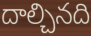
దాల్చినది